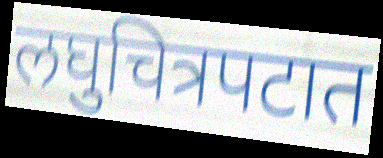
लघुचित्रपटात